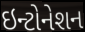
ઇન્ટોનેશન